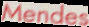
Mendes